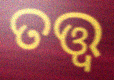
ତତ୍ତ୍ବ